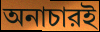
অনাচারই